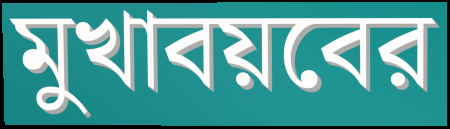
মুখাবয়বের